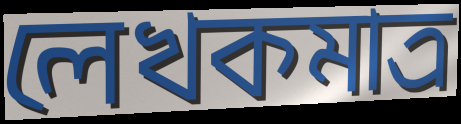
লেখকমাত্র